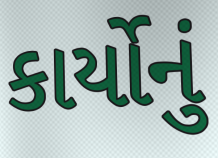
કાર્યોનું